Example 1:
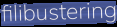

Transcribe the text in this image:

filibustering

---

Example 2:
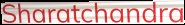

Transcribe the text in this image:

Sharatchandra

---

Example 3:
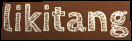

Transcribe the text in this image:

likitang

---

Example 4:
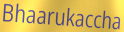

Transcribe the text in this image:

Bhaarukaccha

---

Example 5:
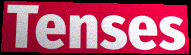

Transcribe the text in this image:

Tenses